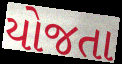
યોજતા